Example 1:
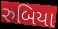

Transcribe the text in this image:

રુબિયા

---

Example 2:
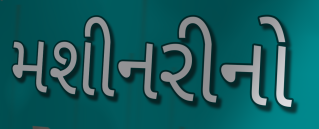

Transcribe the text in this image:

મશીનરીનો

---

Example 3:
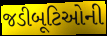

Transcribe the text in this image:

જડીબૂટિઓની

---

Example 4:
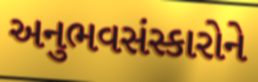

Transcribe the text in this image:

અનુભવસંસ્કારોને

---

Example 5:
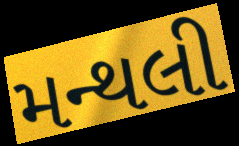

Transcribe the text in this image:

મન્થલી